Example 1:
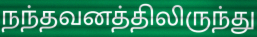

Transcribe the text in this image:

நந்தவனத்திலிருந்து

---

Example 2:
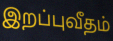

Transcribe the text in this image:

இறப்புவீதம்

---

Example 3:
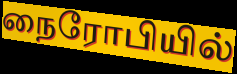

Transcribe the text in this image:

நைரோபியில்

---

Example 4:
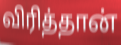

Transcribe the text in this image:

விரித்தான்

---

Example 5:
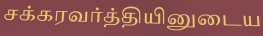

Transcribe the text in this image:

சக்கரவர்த்தியினுடைய